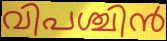
വിപശ്ചിൻ